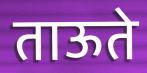
ताऊते